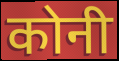
कोनी